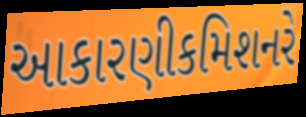
આકારણીકમિશનરે